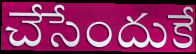
చేసేందుకే